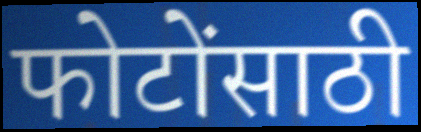
फोटोंसाठी